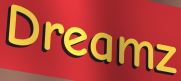
Dreamz